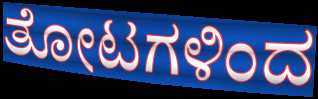
ತೋಟಗಳಿಂದ